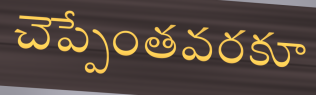
చెప్పేంతవరకూ